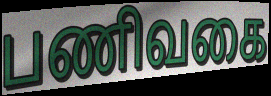
பணிவகை